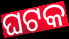
ଘଟକ